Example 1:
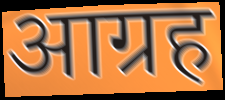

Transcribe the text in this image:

आग्रह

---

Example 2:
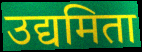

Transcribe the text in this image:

उद्यमिता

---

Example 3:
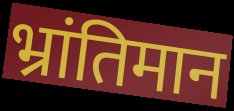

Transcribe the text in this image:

भ्रांतिमान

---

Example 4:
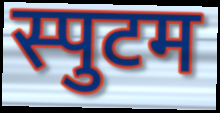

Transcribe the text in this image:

स्पुटम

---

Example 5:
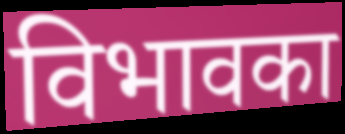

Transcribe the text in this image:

विभावका